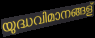
യുദ്ധവിമാനങ്ങള്